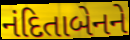
નંદિતાબેનને